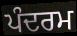
ਪੰਦਰਮ